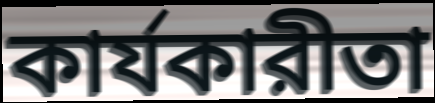
কার্যকারীতা